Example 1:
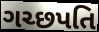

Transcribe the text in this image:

ગચ્છપતિ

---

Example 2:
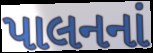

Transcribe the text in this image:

પાલનનાં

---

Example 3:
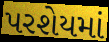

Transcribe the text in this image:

પરશેયમાં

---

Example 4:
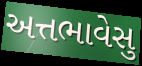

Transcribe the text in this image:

અત્તભાવેસુ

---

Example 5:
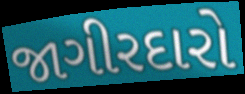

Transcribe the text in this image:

જાગીરદારો